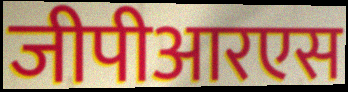
जीपीआरएस